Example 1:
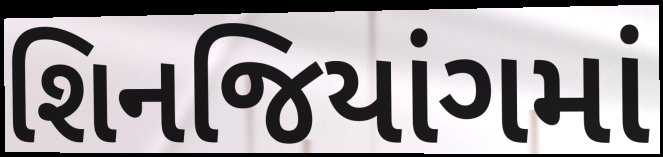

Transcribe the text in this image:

શિનજિયાંગમાં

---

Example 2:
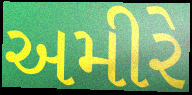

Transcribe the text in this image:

અમીરે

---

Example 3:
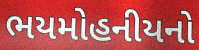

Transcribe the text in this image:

ભયમોહનીયનો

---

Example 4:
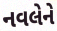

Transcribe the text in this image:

નવલેને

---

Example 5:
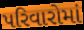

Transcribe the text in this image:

પરિવારોમાં